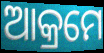
ଆକ୍ରମେ